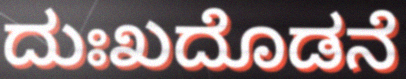
ದುಃಖದೊಡನೆ